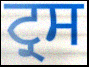
ਟ੍ਰਸ